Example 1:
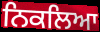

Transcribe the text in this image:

ਨਿਕਲਿਆ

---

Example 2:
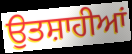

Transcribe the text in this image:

ਉਤਸ਼ਾਹੀਆਂ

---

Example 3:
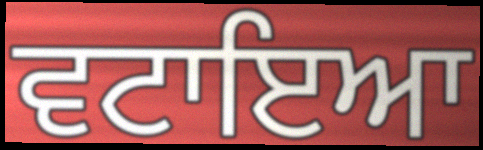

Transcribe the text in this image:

ਵਟਾਇਆ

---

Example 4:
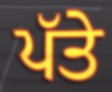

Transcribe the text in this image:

ਪੱਤੇ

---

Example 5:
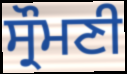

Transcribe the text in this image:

ਸ੍ਰੌਮਣੀ